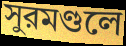
সুরমণ্ডলে